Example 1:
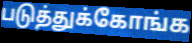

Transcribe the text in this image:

படுத்துக்கோங்க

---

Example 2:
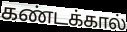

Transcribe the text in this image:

கண்டக்கால்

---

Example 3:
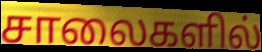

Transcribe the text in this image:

சாலைகளில்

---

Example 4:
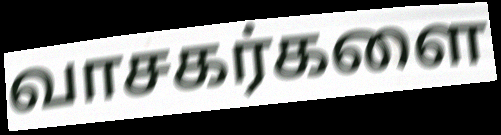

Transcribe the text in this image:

வாசகர்களை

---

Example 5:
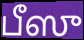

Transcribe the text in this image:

பீஸு